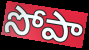
సోపా